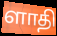
ளாதி